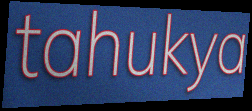
tahukya